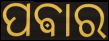
ପଵାର